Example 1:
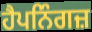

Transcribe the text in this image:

ਹੈਪਨਿੰਗਜ਼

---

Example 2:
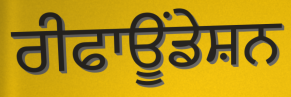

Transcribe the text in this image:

ਰੀਫਾਊਂਡੇਸ਼ਨ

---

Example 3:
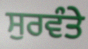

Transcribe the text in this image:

ਸੁਰਵੰਤੇ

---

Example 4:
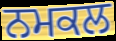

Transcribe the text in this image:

ਨਮਕਲ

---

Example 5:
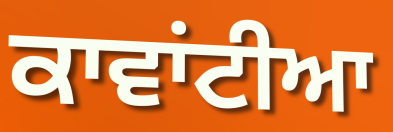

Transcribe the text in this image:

ਕਾਵਾਂਟੀਆ